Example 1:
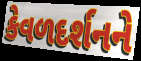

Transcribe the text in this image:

કેવળદર્શનને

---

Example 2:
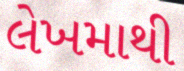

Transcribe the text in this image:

લેખમાથી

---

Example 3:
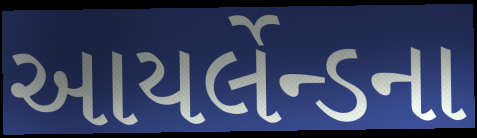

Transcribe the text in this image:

આયર્લેન્ડના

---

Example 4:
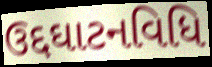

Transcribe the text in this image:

ઉદ્દઘાટનવિધિ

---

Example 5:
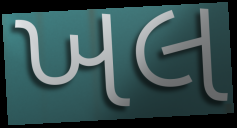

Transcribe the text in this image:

ખલ